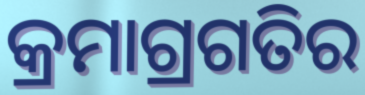
କ୍ରମାଗ୍ରଗତିର